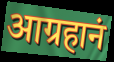
आग्रहानं